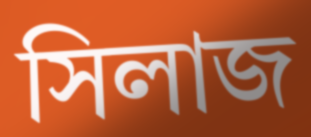
সিলাজ